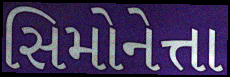
સિમોનેત્તા